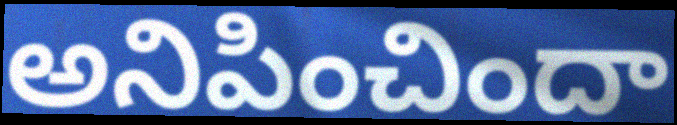
అనిపించిందా